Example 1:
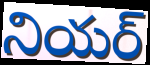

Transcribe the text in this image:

నియర్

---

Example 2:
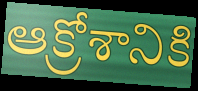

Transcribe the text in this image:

ఆక్రోశానికి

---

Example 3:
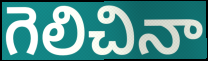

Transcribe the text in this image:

గెలిచినా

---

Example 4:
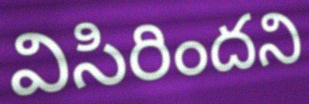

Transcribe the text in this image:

విసిరిందని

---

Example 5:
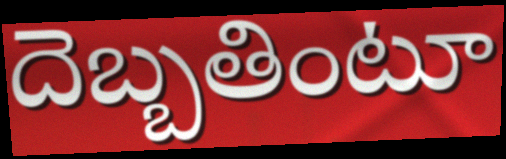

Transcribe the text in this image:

దెబ్బతింటూ